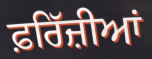
ਫ਼ਰਿੱਜ਼ੀਆਂ